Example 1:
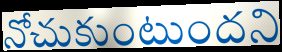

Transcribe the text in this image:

నోచుకుంటుందని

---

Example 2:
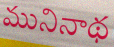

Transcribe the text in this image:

మునినాథ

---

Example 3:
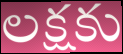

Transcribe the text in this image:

లక్షకు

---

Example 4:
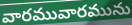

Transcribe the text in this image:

వారమువారమును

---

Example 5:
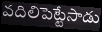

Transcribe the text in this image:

వదిలిపెట్టేసాడు